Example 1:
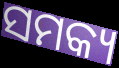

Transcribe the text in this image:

ସମକ୍ୟ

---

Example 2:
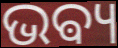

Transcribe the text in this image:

ଭଵ୍ୟ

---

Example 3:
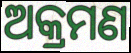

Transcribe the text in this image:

ଅକ୍ରମଣ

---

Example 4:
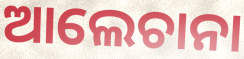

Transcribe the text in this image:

ଆଲେଚାନା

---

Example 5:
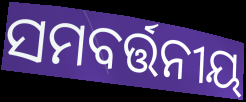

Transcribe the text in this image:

ସମବର୍ତ୍ତନୀୟ